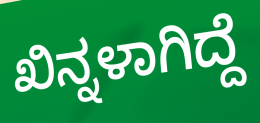
ಖಿನ್ನಳಾಗಿದ್ದೆ